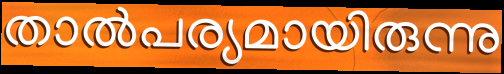
താൽപര്യമായിരുന്നു